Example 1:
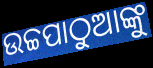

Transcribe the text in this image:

ଉଚ୍ଚପାଠୁଆଙ୍କୁ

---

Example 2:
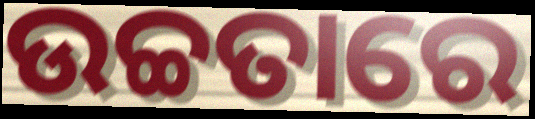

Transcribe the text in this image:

ଉଚ୍ଚତାରେ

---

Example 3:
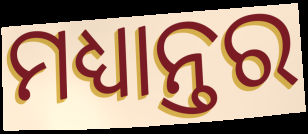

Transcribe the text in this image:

ମଧ୍ୟାନ୍ତର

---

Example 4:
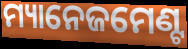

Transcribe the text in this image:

ମ୍ୟାନେଜମେଣ୍ଟ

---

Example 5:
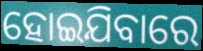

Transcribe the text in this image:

ହୋଇଯିବାରେ